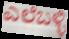
ಎಲೆಬಳ್ಳಿ